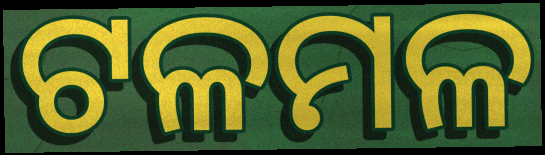
ଟଳମଳ